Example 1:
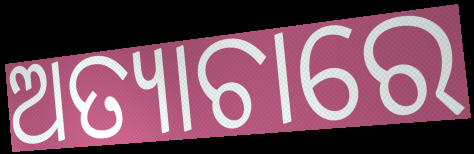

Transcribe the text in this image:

ଅତ୍ୟାଚାରେ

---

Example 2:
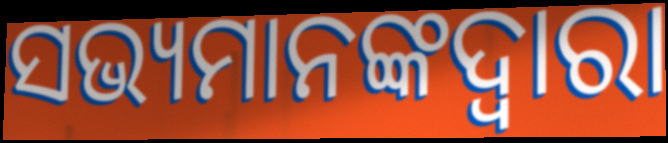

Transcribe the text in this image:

ସଭ୍ୟମାନଙ୍କଦ୍ୱାରା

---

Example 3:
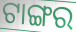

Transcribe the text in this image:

ଟାଙ୍ଗର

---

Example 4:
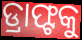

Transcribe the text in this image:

ଡ୍ରାଫ୍ଟକୁ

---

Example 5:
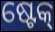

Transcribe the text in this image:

ଷ୍ଟେକ୍